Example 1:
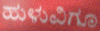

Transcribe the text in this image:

ಹುಳುವಿಗೂ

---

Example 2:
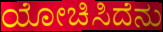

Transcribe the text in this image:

ಯೋಚಿಸಿದೆನು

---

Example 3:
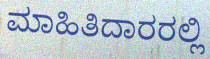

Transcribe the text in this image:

ಮಾಹಿತಿದಾರರಲ್ಲಿ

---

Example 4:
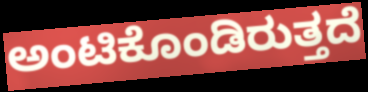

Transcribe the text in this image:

ಅಂಟಿಕೊಂಡಿರುತ್ತದೆ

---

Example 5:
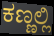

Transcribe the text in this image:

ಕಣ್ಣಲ್ಲಿ